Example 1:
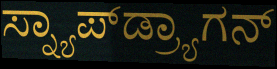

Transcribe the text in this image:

ಸ್ನ್ಯಾಪ್‌ಡ್ರ್ಯಾಗನ್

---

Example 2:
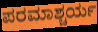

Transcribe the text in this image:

ಪರಮಾಶ್ಚರ್ಯ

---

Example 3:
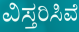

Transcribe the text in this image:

ವಿಸ್ತರಿಸಿವೆ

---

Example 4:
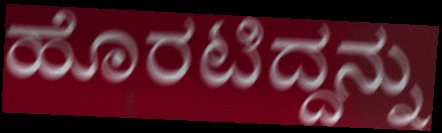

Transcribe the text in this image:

ಹೊರಟಿದ್ದನ್ನು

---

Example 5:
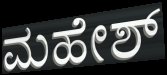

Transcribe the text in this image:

ಮಹೇಶ್